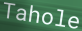
Tahole